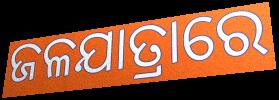
ଜଳଯାତ୍ରାରେ